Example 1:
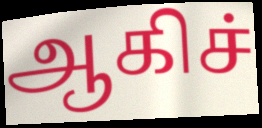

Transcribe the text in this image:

ஆகிச்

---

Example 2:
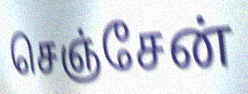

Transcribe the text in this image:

செஞ்சேன்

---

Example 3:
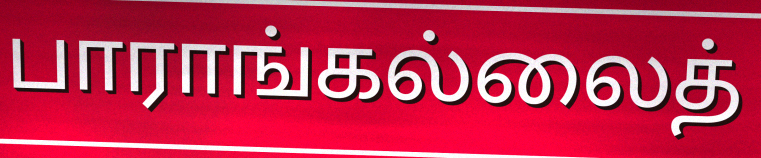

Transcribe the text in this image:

பாராங்கல்லைத்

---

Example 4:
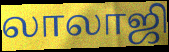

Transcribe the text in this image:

லாலாஜி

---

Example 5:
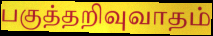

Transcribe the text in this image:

பகுத்தறிவுவாதம்